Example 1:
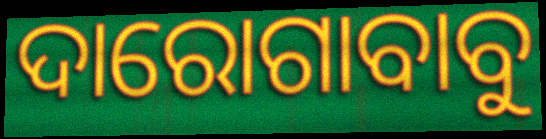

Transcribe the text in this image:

ଦାରୋଗାବାବୁ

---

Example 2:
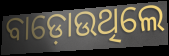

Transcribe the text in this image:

ବାଡ଼ୋଉଥିଲେ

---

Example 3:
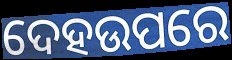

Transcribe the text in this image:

ଦେହଉପରେ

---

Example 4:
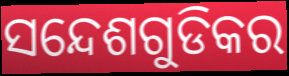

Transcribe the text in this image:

ସନ୍ଦେଶଗୁଡିକର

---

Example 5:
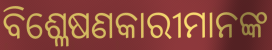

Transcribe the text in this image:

ବିଶ୍ଳେଷଣକାରୀମାନଙ୍କ